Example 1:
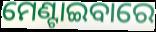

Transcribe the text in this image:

ମେଣ୍ଟାଇବାରେ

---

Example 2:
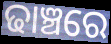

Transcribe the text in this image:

ଢାଞ୍ଚରେ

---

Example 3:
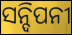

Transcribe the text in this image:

ସନ୍ଦିପନୀ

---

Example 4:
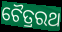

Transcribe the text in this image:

ଚୈତ୍ରରଥ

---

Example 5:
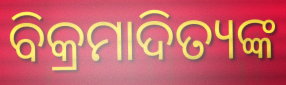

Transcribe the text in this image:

ବିକ୍ରମାଦିତ୍ୟଙ୍କ